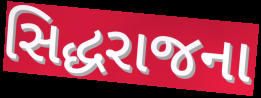
સિદ્ધરાજના